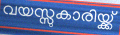
വയസ്സുകാരിയ്ക്ക്